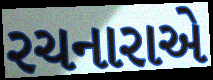
રચનારાએ